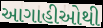
આગાહીઓથી